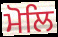
ਮੋਲਿ